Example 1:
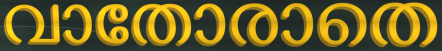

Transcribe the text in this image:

വാതോരാതെ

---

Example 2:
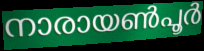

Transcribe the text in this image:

നാരായൺപൂർ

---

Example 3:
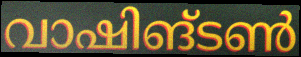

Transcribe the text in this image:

വാഷിങ്ടൺ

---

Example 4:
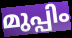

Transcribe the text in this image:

മുപ്പിം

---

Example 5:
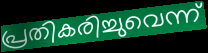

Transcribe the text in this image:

പ്രതികരിച്ചുവെന്ന്